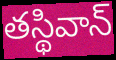
తస్థివాన్